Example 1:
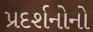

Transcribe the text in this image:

પ્રદર્શનોનો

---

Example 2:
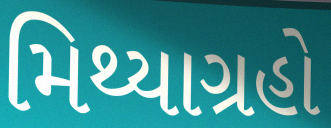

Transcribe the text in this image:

મિથ્યાગ્રહો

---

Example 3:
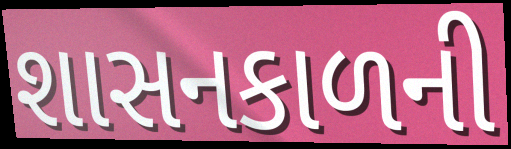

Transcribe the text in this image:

શાસનકાળની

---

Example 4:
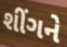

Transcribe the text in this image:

શીંગને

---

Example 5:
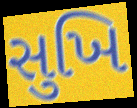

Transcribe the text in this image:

સુખિ